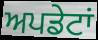
ਅਪਡੇਟਾਂ